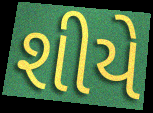
શીયે